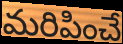
మరిపించే